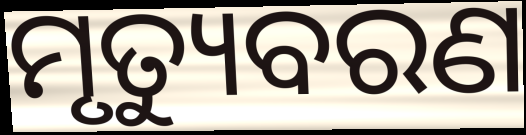
ମୃତ୍ୟୁବରଣ